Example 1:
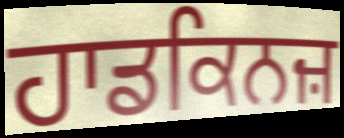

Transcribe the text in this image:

ਹਾਡਕਿਨਜ਼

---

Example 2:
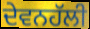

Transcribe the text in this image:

ਦੇਵਨਹੱਲੀ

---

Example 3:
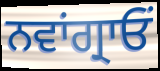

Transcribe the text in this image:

ਨਵਾਂਗ੍ਰਾਓਂ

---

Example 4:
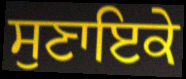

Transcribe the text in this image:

ਸੁਣਾਇਕੇ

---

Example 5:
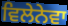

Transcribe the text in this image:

ਵਿਲੇਨੇਵਾ